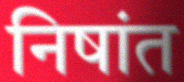
निषांत